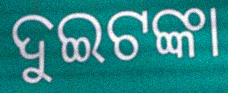
ଦୁଇଟଙ୍କା